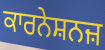
ਕਾਰਨੇਸ਼ਨਜ਼